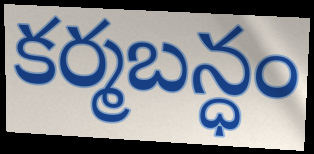
కర్మబన్ధం